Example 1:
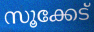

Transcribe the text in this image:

സൂക്കേട്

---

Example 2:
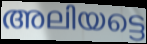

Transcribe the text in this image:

അലിയട്ടെ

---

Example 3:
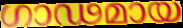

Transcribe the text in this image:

ഗാഢമായ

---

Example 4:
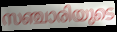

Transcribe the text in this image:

സഞ്ചാരിയുടെ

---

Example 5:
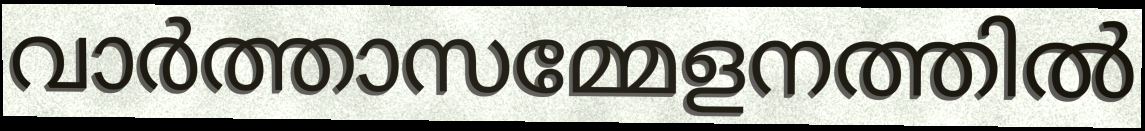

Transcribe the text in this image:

വാർത്താസമ്മേളനത്തിൽ